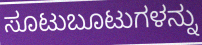
ಸೂಟುಬೂಟುಗಳನ್ನು